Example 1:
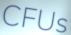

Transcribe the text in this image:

CFUs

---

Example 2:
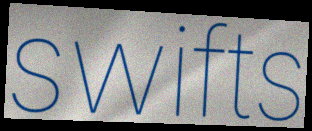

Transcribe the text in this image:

swifts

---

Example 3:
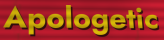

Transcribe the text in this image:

Apologetic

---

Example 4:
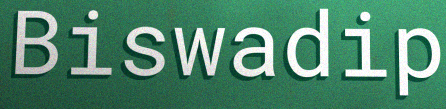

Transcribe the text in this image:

Biswadip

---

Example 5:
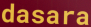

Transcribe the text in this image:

dasara